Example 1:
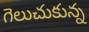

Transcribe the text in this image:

గెలుచుకున్న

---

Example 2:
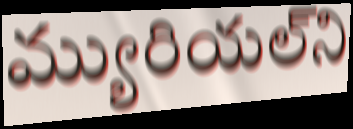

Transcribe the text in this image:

మ్యురియల్‌ని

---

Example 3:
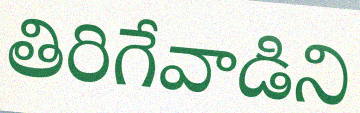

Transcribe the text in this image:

తిరిగేవాడిని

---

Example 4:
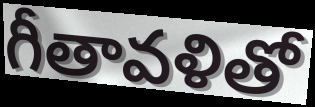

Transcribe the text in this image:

గీతావళితో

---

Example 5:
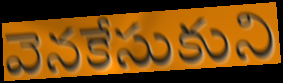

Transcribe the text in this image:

వెనకేసుకుని